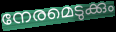
നേരമെടുക്കും